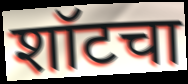
शॉटचा